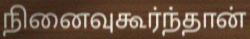
நினைவுகூர்ந்தான்